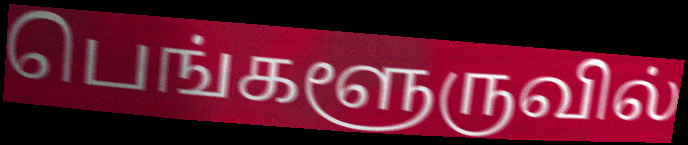
பெங்களூருவில்